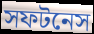
সফটনেস